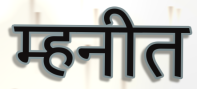
म्हनीत